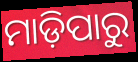
ମାଡ଼ିପାରୁ